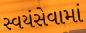
સ્વયંસેવામાં